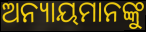
ଅନ୍ୟାୟମାନଙ୍କୁ